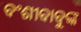
ବଂଶୀବାବୁଙ୍କ